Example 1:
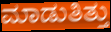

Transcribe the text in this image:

ಮಾಡುತಿತ್ತು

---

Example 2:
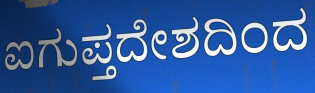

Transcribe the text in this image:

ಐಗುಪ್ತದೇಶದಿಂದ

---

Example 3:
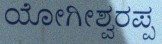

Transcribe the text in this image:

ಯೋಗೀಶ್ವರಪ್ಪ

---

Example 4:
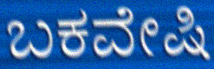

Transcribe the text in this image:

ಬಕವೇಷಿ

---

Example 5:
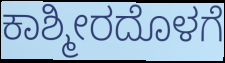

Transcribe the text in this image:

ಕಾಶ್ಮೀರದೊಳಗೆ